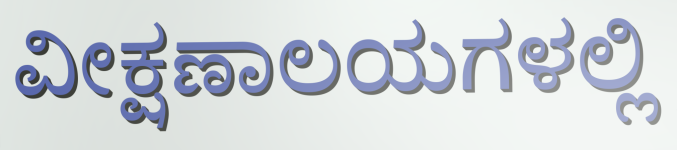
ವೀಕ್ಷಣಾಲಯಗಳಲ್ಲಿ